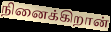
நினைக்கிறான்